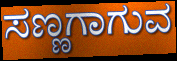
ಸಣ್ಣಗಾಗುವ